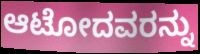
ಆಟೋದವರನ್ನು